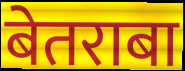
बेतराबा